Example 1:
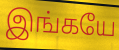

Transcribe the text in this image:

இங்கயே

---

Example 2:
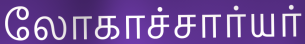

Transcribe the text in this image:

லோகாச்சார்யர்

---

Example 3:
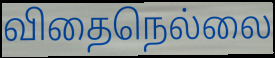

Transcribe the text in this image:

விதைநெல்லை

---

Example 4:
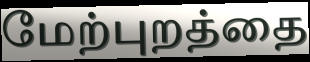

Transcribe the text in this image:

மேற்புறத்தை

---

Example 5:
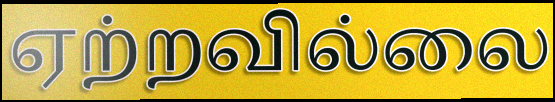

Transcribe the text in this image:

ஏற்றவில்லை